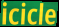
icicle